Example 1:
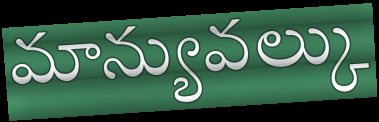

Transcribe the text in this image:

మాన్యువల్కు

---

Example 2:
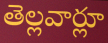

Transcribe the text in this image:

తెల్లవార్లూ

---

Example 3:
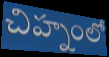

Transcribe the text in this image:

చిహ్నంలో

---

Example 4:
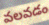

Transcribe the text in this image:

వలవడం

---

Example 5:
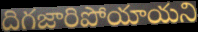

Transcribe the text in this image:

దిగజారిపోయాయని